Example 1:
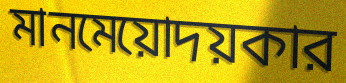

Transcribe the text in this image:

মানমেয়োদয়কার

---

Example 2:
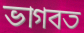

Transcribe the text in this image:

ভাগবত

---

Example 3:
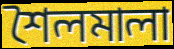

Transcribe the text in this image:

শৈলমালা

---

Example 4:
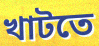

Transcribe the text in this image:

খাটতে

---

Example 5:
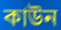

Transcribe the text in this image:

কাউন